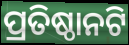
ପ୍ରତିଷ୍ଠାନଟି